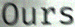
Ours